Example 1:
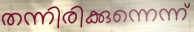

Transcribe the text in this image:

തന്നിരിക്കുന്നെന്ന്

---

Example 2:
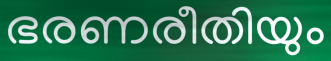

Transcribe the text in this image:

ഭരണരീതിയും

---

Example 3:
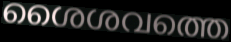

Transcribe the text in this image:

ശൈശവത്തെ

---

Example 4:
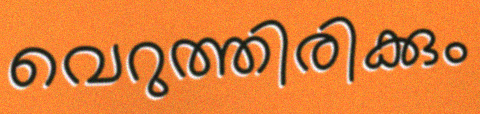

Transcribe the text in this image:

വെറുത്തിരിക്കും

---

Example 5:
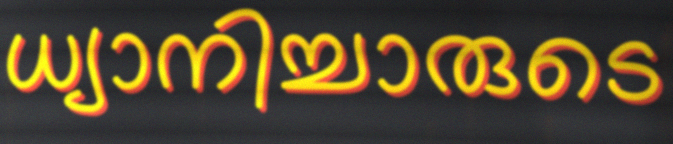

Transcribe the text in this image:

ധ്യാനിച്ചാരുടെ